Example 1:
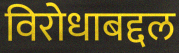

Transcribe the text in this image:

विरोधाबद्दल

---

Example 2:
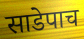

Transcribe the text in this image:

साडेपाच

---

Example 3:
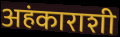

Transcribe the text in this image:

अहंकाराशी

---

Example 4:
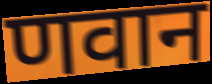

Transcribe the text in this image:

णवान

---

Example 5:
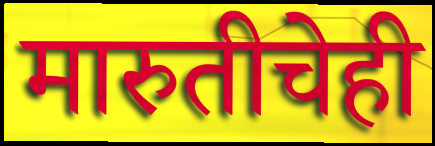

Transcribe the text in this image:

मारुतीचेही